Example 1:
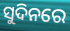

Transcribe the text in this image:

ସୁଦିନରେ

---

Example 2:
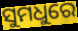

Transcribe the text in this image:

ସୁମଧୁରେ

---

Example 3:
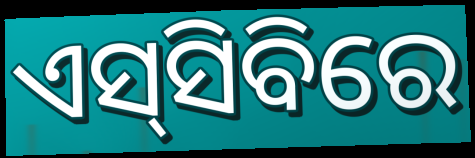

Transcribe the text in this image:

ଏସ୍‌ସିବିରେ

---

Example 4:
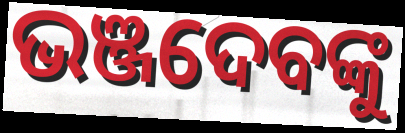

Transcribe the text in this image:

ଭଞ୍ଜଦେବଙ୍କୁ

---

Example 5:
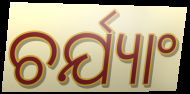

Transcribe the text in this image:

ଚର୍ଯ୍ୟାଂ